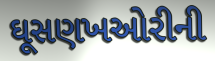
ઘૂસણખઓરીની